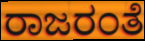
ರಾಜರಂತೆ